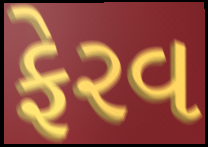
ફેરવ